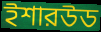
ইশারউড